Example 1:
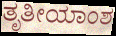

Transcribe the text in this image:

ತೃತೀಯಾಂಶ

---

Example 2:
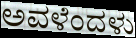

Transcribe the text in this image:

ಅವಳೆಂದಳು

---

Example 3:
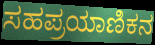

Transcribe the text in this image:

ಸಹಪ್ರಯಾಣಿಕನ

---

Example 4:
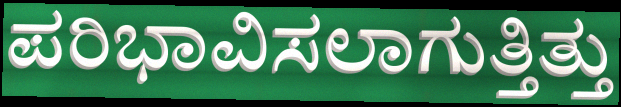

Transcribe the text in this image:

ಪರಿಭಾವಿಸಲಾಗುತ್ತಿತ್ತು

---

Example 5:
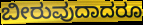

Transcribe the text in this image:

ಬೀರುವುದಾದರೂ